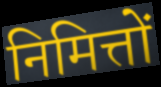
निमित्तों